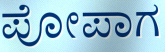
ಪೋಪಾಗ